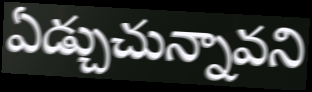
ఏడ్చుచున్నావని